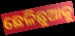
ଛେଳିଛୁଆକୁ